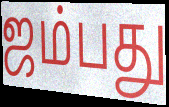
ஜம்பது